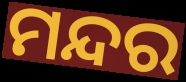
ମନ୍ଦର